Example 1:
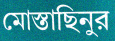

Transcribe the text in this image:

মোস্তাছিনুর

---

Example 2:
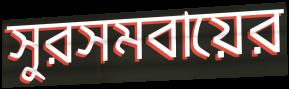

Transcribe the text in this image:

সুরসমবায়ের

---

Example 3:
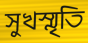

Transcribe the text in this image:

সুখস্মৃতি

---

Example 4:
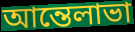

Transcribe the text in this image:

আন্তেলাভা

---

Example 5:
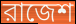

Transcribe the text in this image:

রাজেশ